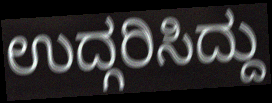
ಉದ್ಗರಿಸಿದ್ದು